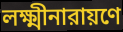
লক্ষ্মীনারায়ণে